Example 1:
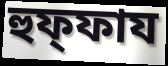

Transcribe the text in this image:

হুফ্ফায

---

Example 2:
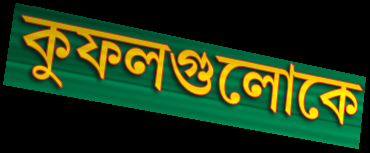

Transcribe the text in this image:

কুফলগুলোকে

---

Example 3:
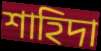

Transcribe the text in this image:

শাহিদা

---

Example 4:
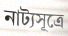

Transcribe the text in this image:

নাট্যসূত্রে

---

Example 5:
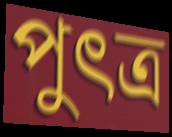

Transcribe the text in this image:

পুৎত্র